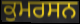
ਕੁਮਰਸਨ